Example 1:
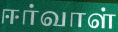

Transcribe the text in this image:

ஈர்வாள்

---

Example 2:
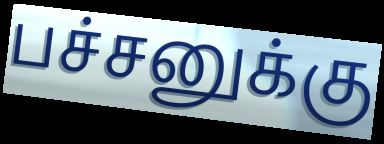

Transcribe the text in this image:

பச்சனுக்கு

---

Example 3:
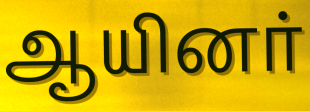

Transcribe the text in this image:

ஆயினர்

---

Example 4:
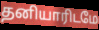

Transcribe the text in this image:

தனியாரிடமே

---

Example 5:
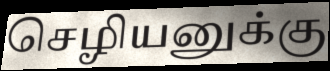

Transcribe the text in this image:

செழியனுக்கு